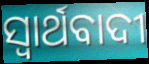
ସ୍ବାର୍ଥବାଦୀ